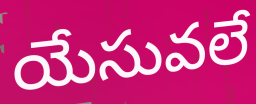
యేసువలే